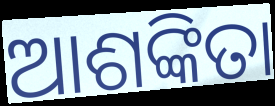
ଆଶଙ୍କିତା